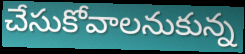
చేసుకోవాలనుకున్న